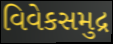
વિવેકસમુદ્ર